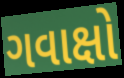
ગવાક્ષો